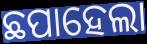
ଛପାହେଲା